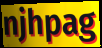
njhpag